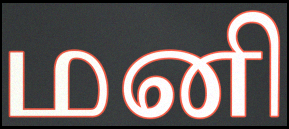
மனி